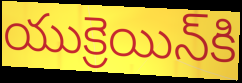
యుక్రెయిన్‌కి